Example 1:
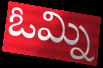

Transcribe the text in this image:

ఓమ్ని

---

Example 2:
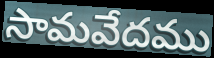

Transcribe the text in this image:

సామవేదము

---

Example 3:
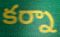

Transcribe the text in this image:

కర్నా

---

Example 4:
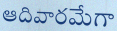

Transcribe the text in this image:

ఆదివారమేగా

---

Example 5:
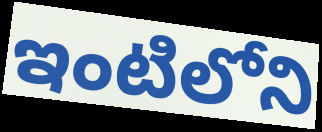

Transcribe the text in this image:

ఇంటిలోని